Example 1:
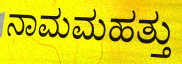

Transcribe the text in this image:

ನಾಮಮಹತ್ತು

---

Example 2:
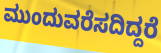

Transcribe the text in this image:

ಮುಂದುವರೆಸದಿದ್ದರೆ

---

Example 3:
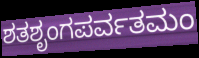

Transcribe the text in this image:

ಶತಶೃಂಗಪರ್ವತಮಂ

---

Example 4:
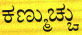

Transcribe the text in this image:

ಕಣ್ಮುಚ್ಚು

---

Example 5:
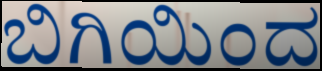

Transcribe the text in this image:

ಬಿಗಿಯಿಂದ